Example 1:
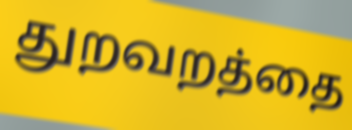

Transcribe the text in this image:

துறவறத்தை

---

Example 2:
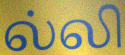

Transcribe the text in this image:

ல்லி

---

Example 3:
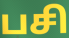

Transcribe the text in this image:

பசி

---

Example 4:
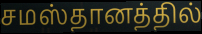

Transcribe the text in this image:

சமஸ்தானத்தில்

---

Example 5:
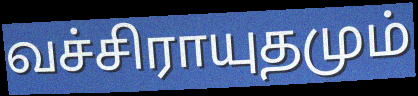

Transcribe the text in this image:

வச்சிராயுதமும்